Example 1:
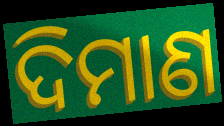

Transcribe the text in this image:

ଦିମାଣ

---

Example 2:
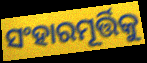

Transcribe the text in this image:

ସଂହାରମୂର୍ତ୍ତିକୁ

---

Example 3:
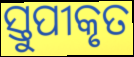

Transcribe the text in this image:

ସ୍ତୁପୀକୃତ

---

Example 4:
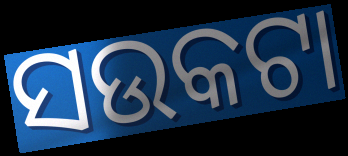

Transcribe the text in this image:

ସଉକଟା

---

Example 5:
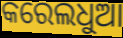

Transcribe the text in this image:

କରେଲଧୁଆ